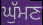
ਘੁੱਮਣ